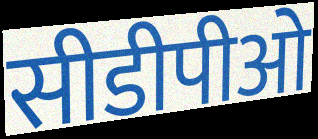
सीडीपीओ